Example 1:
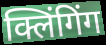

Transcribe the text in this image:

क्लिंगिंग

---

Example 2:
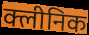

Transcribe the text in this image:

क्लीनिक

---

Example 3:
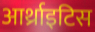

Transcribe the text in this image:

आर्थ्राइटिस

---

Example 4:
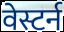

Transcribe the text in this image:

वेस्टर्न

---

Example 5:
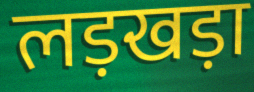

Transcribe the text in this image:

लड़खड़ा